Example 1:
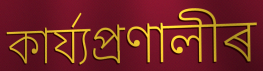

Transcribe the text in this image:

কাৰ্য্যপ্ৰণালীৰ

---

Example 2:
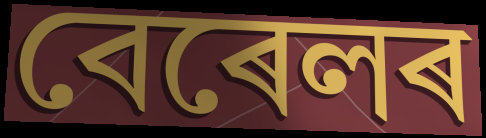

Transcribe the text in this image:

বেৰেলৰ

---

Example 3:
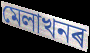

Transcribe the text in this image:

মেলাখনৰ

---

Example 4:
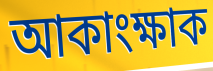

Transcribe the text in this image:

আকাংক্ষাক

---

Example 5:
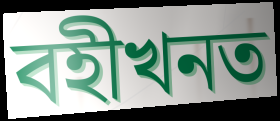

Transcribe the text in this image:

বহীখনত